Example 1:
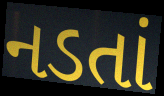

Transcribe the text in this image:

નડતાં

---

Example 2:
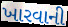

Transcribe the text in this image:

ખારવાની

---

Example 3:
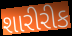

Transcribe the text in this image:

શારીરીક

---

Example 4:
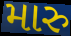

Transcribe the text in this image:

મારુ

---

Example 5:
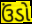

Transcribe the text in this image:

ઉંડો